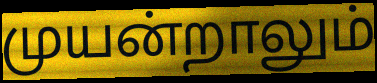
முயன்றாலும்